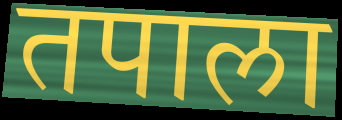
तपाला